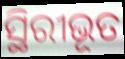
ସ୍ଥିରୀଭୂତ